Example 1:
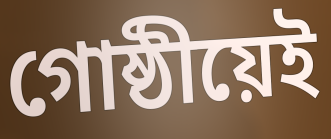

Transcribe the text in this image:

গোষ্ঠীয়েই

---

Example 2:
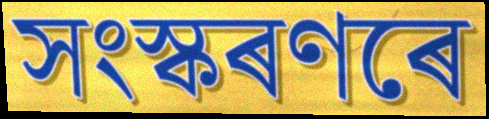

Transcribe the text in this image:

সংস্কৰণৰে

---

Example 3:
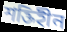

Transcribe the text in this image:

শক্তিহীন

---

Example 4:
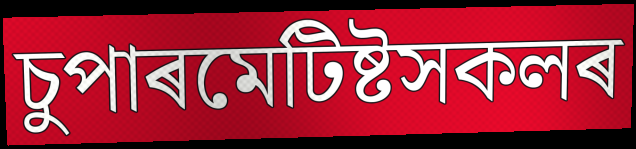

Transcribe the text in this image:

চুপাৰমেটিষ্টসকলৰ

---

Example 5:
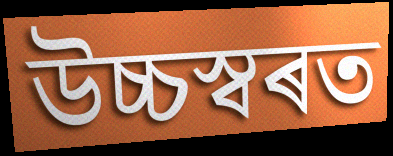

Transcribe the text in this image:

উচ্চস্বৰত